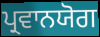
ਪ੍ਰਵਾਨਯੋਗ